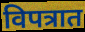
विपत्रात